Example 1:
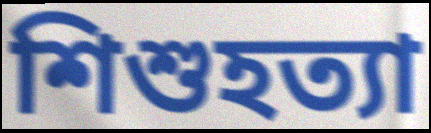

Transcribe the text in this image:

শিশুহত্যা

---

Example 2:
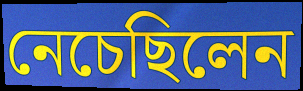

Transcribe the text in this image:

নেচেছিলেন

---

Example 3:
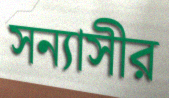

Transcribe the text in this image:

সন্যাসীর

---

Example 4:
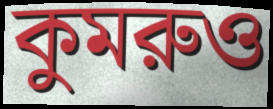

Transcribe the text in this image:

কুমরুও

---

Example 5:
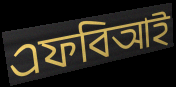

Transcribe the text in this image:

এফবিআই